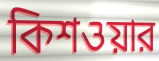
কিশওয়ার